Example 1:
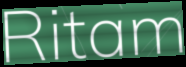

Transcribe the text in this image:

Ritam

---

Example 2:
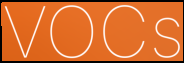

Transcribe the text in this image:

VOCs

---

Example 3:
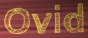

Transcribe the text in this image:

Ovid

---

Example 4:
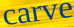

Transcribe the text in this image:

carve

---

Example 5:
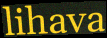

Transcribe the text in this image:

lihava